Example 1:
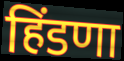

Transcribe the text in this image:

हिंडणा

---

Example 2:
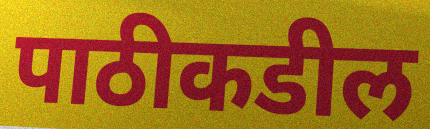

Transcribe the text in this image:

पाठीकडील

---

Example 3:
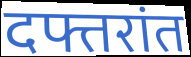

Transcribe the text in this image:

दफ्तरांत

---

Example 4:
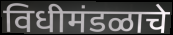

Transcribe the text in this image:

विधीमंडळाचे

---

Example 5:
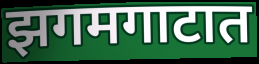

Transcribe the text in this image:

झगमगाटात